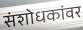
संशोधकांवर